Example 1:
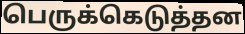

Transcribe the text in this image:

பெருக்கெடுத்தன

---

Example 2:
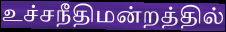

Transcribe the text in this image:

உச்சநீதிமன்றத்தில்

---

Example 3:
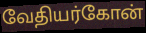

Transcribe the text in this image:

வேதியர்கோன்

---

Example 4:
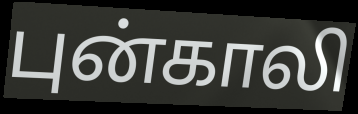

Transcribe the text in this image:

புன்காலி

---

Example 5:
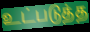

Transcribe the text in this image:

உட்படுத்த